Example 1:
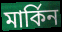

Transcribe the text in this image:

মার্কিন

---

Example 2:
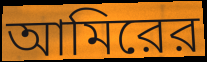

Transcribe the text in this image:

আমিরের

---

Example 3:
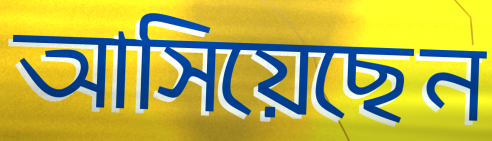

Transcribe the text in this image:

আসিয়েছেন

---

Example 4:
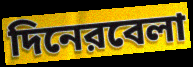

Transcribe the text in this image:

দিনেরবেলা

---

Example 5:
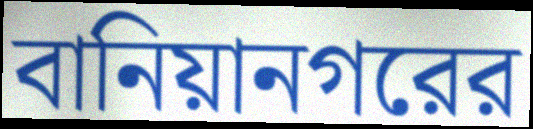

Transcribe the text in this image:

বানিয়ানগরের